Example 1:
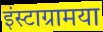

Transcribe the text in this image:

इंस्टाग्रामया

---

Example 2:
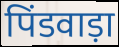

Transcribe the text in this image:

पिंडवाड़ा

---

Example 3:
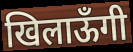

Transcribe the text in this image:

खिलाऊँगी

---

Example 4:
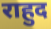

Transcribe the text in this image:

राहुद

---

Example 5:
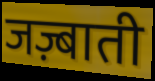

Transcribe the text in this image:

जज़्बाती